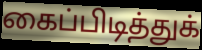
கைப்பிடித்துக்